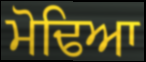
ਮੋਢਿਆ